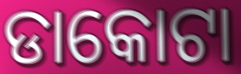
ଡାକୋଟା